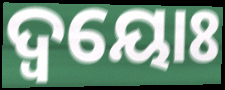
ଦ୍ବୟୋଃ